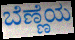
ಬೆಣ್ಣೆಯ